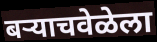
बर्‍याचवेळेला